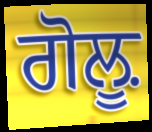
ਗੋਲ਼ੂ